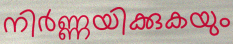
നിർണ്ണയിക്കുകയും